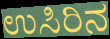
ಉಸಿರಿನ